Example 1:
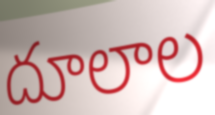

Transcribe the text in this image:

దూలాల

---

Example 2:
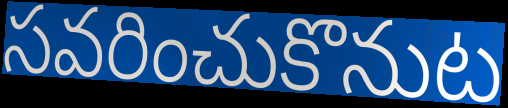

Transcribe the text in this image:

సవరించుకొనుట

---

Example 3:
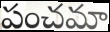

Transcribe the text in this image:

పంచమా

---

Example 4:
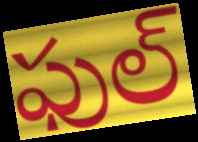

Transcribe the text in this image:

ఫుల్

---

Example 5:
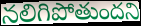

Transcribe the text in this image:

నలిగిపోతుందని